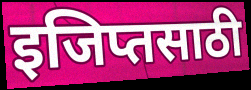
इजिप्तसाठी